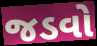
જડવો